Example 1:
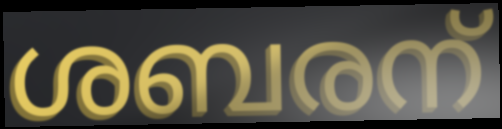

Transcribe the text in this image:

ശബരന്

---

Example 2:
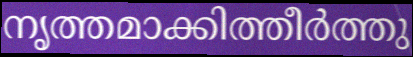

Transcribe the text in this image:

നൃത്തമാക്കിത്തീർത്തു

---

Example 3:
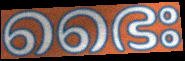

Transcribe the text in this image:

ഭൈഃ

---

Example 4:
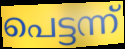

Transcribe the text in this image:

പെട്ടന്ന്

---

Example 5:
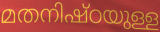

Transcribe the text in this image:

മതനിഷ്ഠയുള്ള